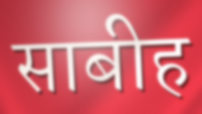
साबीह